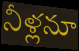
నీళ్లనూ